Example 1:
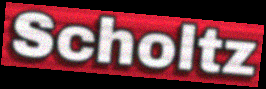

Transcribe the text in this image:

Scholtz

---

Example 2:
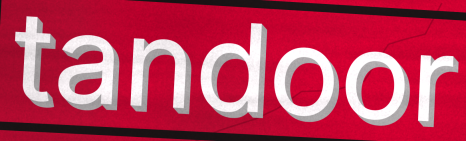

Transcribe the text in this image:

tandoor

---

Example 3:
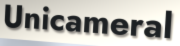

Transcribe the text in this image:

Unicameral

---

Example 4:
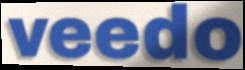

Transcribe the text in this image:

veedo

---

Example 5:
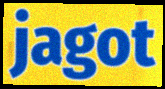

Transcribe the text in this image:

jagot